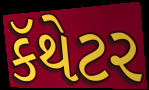
કૅથેટર